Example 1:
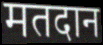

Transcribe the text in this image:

मतदान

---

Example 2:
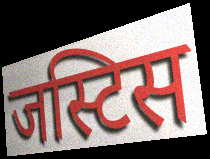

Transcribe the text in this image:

जस्टिस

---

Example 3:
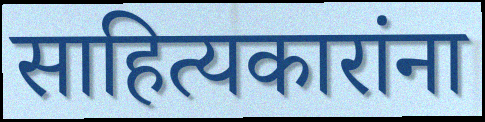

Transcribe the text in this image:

साहित्यकारांना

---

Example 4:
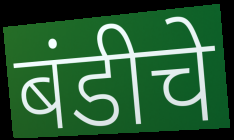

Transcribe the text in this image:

बंडीचे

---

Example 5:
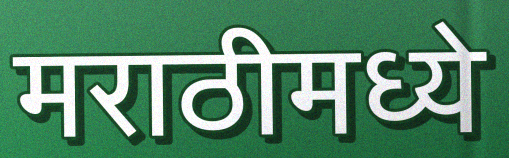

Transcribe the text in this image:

मराठीमध्ये